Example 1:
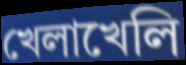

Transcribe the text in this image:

খেলাখেলি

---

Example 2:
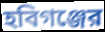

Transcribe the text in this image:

হবিগঞ্জের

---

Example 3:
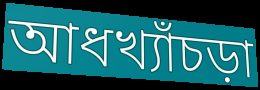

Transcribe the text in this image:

আধখ্যাঁচড়া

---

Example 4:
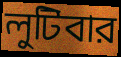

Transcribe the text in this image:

লুটিবার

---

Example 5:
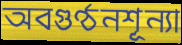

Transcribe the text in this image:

অবগুণ্ঠনশূন্যা